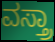
ವಸ್ತ್ರಾ